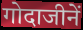
गोदाजीनें